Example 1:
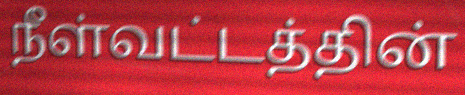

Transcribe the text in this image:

நீள்வட்டத்தின்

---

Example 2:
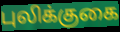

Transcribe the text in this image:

புலிக்குகை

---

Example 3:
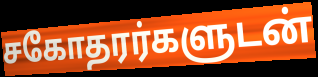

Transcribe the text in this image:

சகோதரர்களுடன்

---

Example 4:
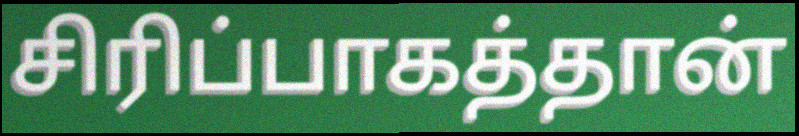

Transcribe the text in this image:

சிரிப்பாகத்தான்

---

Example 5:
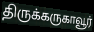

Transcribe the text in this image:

திருக்கருகாவூர்